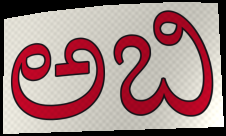
ಅಬಿ